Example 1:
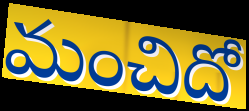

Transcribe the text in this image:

మంచిదో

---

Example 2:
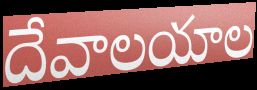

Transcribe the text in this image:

దేవాలయాల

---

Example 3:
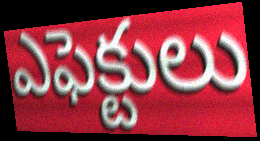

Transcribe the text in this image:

ఎఫెక్టులు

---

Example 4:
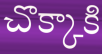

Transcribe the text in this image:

చొక్కాకి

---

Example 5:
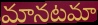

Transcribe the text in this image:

మానటమా